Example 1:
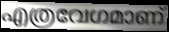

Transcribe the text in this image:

എത്രവേഗമാണ്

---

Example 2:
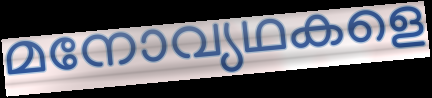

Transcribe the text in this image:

മനോവ്യഥകളെ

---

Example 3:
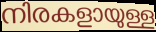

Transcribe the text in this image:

നിരകളായുള്ള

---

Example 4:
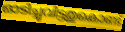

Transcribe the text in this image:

ഓടിച്ചുവിട്ടതുകൊണ്ട്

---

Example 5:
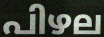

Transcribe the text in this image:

പിഴല